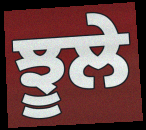
ਝੂਲੇ